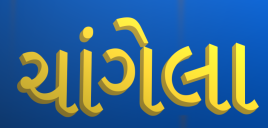
ચાંગેલા